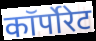
कॉर्पोरेट